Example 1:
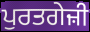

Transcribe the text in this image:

ਪੁਰਤਗੇਜ਼ੀ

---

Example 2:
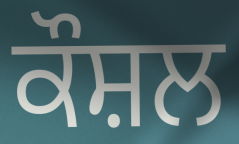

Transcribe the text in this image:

ਕੌਸ਼ਲ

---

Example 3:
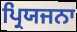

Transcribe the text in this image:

ਪ੍ਰਿਯਜਨਾ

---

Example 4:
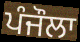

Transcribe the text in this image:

ਪੰਜੌਲਾ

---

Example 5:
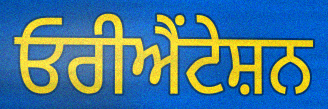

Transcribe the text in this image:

ਓਰੀਐਂਟੇਸ਼ਨ